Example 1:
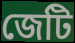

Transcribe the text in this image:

জেটি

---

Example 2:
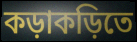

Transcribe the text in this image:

কড়াকড়িতে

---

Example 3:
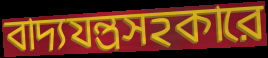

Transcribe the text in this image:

বাদ্যযন্ত্রসহকারে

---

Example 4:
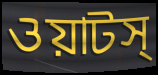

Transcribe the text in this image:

ওয়াটস্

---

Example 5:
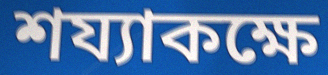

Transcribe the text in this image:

শয্যাকক্ষে